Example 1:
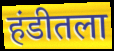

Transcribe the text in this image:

हंडीतला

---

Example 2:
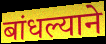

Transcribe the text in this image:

बांधल्याने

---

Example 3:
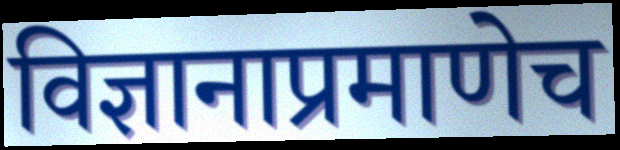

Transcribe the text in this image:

विज्ञानाप्रमाणेच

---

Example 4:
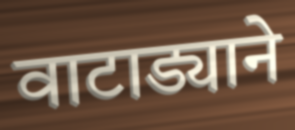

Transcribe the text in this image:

वाटाड्याने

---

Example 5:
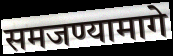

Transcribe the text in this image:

समजण्यामागे